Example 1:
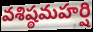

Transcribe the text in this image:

వశిష్ఠమహర్షి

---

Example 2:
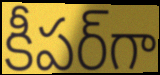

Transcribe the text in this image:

కీపర్‌గా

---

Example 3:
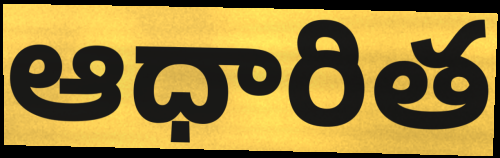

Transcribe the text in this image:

ఆధారిత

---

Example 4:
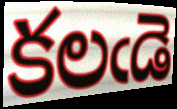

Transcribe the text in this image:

కలఁడె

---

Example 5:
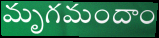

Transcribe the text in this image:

మృగమందాం